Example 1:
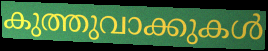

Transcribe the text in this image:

കുത്തുവാക്കുകൾ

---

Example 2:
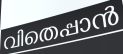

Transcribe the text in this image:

വിതെപ്പാൻ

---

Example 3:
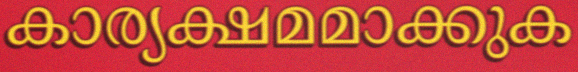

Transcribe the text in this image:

കാര്യക്ഷമമാക്കുക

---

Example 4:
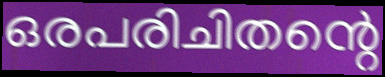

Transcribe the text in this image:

ഒരപരിചിതന്റെ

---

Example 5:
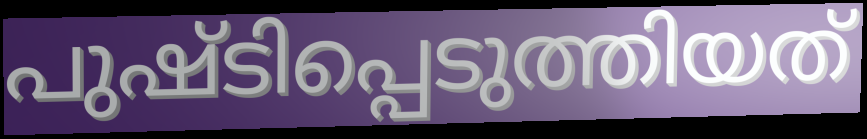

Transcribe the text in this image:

പുഷ്ടിപ്പെടുത്തിയത്